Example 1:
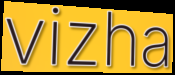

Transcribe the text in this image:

vizha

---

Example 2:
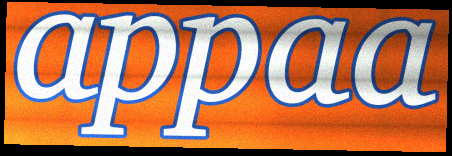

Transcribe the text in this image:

appaa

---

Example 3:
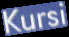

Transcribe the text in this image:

Kursi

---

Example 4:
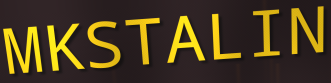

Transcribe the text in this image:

MKSTALIN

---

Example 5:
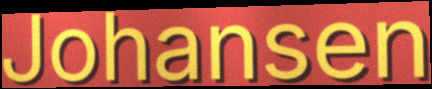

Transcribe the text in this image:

Johansen